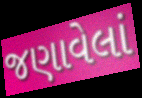
જણાવેલાં